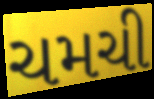
ચમચી